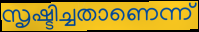
സൃഷ്ടിച്ചതാണെന്ന്